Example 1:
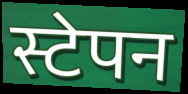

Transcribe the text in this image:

स्टेपन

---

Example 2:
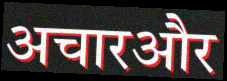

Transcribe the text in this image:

अचारऔर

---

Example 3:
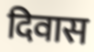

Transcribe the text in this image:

दिवास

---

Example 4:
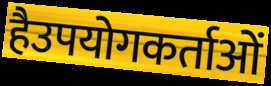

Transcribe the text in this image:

हैउपयोगकर्ताओं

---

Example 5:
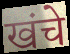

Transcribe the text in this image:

खंचे